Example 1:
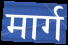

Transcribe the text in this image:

मार्ग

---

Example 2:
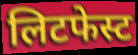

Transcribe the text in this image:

लिटफेस्ट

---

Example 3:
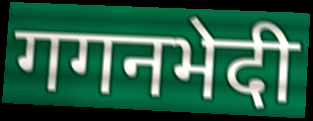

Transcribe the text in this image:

गगनभेदी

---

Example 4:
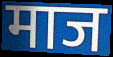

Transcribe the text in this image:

माज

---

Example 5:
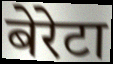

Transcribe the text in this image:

बेरेटा